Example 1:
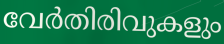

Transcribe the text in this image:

വേർതിരിവുകളും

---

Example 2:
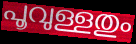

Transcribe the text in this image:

പൂവുള്ളതും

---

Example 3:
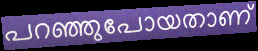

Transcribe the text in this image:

പറഞ്ഞുപോയതാണ്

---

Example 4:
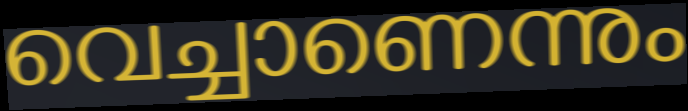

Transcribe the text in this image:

വെച്ചാണെന്നും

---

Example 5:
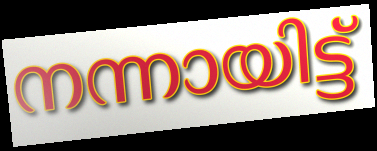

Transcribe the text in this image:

നന്നായിട്ട്